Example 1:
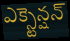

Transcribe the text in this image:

ఎక్స్టెన్షన్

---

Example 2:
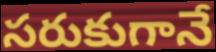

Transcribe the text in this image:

సరుకుగానే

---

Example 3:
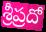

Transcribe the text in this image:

శ్రీప్రదో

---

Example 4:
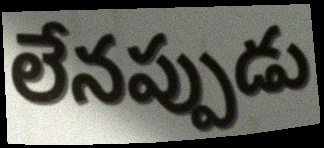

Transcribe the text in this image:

లేనప్పుడు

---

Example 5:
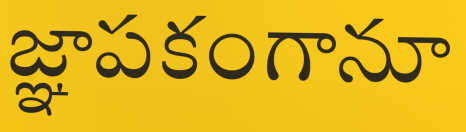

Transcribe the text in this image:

జ్ఞాపకంగానూ